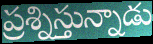
ప్రశ్నిస్తున్నాడు